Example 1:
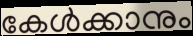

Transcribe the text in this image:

കേൾക്കാനും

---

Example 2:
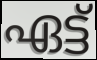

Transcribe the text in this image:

ഏട്ട്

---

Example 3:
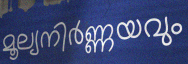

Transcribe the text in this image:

മൂല്യനിർണ്ണയവും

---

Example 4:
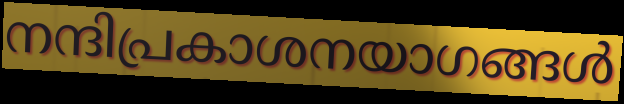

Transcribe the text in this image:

നന്ദിപ്രകാശനയാഗങ്ങൾ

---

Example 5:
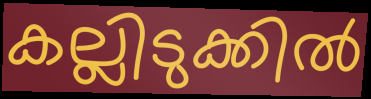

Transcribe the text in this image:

കല്ലിടുക്കിൽ